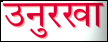
उनुरखा